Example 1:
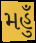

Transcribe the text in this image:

મહુઁ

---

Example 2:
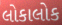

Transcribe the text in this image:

લોકાલોક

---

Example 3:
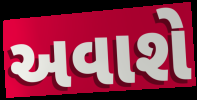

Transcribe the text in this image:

અવાશે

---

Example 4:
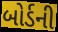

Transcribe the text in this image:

બોર્ડની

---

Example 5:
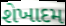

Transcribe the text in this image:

શેખાદમ